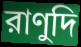
রাণুদি